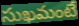
సుఖమంటే